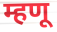
म्हणू